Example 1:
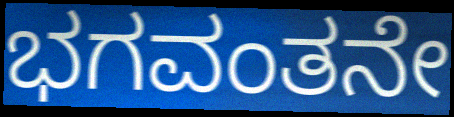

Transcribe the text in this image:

ಭಗವಂತನೇ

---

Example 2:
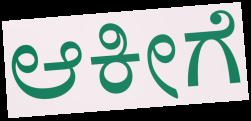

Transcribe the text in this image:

ಆಕೀಗೆ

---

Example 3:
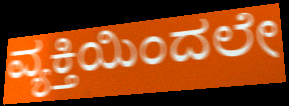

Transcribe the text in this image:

ವ್ಯಕ್ತಿಯಿಂದಲೇ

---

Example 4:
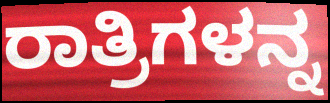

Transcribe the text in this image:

ರಾತ್ರಿಗಳನ್ನ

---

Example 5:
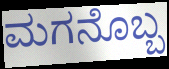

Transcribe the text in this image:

ಮಗನೊಬ್ಬ